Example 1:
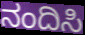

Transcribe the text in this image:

ನಂದಿಸಿ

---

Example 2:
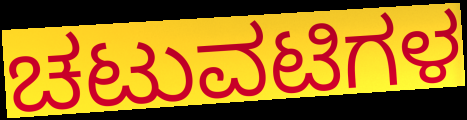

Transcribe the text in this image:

ಚಟುವಟಿಗಳ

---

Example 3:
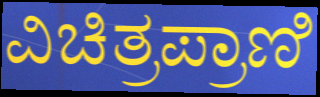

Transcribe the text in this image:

ವಿಚಿತ್ರಪ್ರಾಣಿ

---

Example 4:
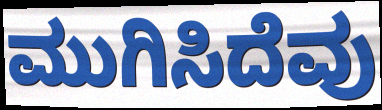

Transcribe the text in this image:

ಮುಗಿಸಿದೆವು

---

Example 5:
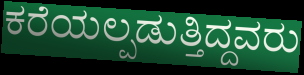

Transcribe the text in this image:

ಕರೆಯಲ್ಪಡುತ್ತಿದ್ದವರು